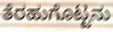
ತೆರಹುಗೊಟ್ಟನು